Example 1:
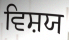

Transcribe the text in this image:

ਵਿਸ਼ਯ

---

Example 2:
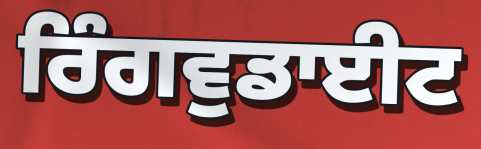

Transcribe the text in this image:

ਰਿੰਗਵੁਡਾਈਟ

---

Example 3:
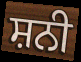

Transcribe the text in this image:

ਸ਼ਨੀ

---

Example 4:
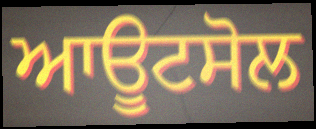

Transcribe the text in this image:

ਆਊਟਸੋਲ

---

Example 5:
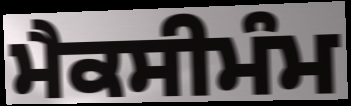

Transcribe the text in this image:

ਮੈਕਸੀਮੰਮ